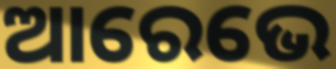
ଆରେଭେ